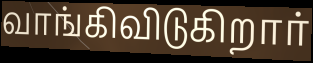
வாங்கிவிடுகிறார்